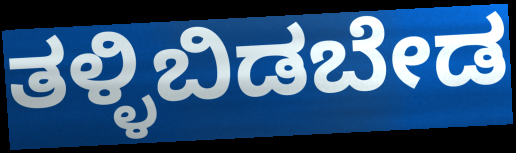
ತಳ್ಳಿಬಿಡಬೇಡ